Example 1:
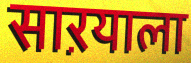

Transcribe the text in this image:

साऱयाला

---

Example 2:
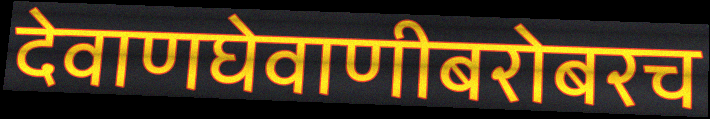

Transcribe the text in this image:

देवाणघेवाणीबरोबरच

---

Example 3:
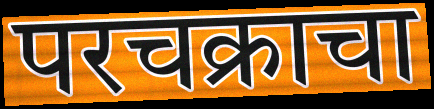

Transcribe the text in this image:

परचक्राचा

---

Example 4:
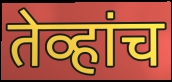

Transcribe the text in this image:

तेव्हांच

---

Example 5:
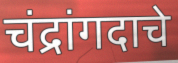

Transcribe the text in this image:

चंद्रांगदाचे